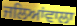
ਜਲਿਆਂਵਾਲਾ